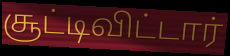
சூட்டிவிட்டார்